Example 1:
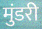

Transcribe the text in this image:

मुंडरी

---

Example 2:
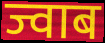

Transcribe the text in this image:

ज्वाब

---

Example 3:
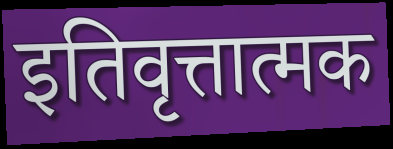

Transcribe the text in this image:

इतिवृत्तात्मक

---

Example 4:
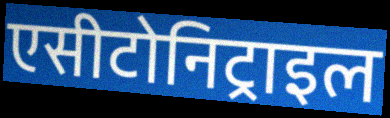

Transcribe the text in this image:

एसीटोनिट्राइल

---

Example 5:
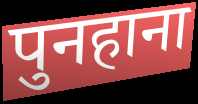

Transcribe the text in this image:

पुनहाना